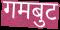
गमबुट